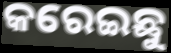
କରେଇଛୁ